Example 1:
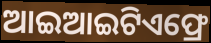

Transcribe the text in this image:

ଆଇଆଇଟିଏଫ୍ରେ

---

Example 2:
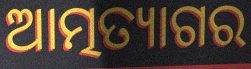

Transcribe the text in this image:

ଆତ୍ମତ୍ୟାଗର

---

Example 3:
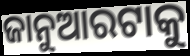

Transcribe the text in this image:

ଜାନୁଆରଟାକୁ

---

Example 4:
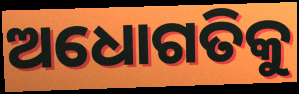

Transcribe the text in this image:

ଅଧୋଗତିକୁ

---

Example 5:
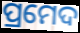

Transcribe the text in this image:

ପ୍ରମେଦ